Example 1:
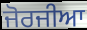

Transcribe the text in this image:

ਜੋਰਜੀਆ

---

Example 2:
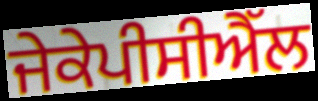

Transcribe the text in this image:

ਜੇਕੇਪੀਸੀਐੱਲ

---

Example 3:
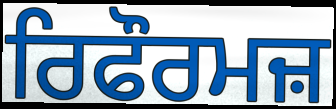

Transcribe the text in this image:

ਰਿਫੌਰਮਜ਼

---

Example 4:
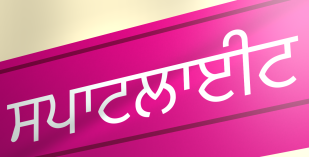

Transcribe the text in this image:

ਸਪਾਟਲਾਈਟ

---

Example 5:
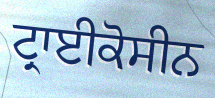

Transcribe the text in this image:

ਟ੍ਰਾਈਕੋਸੀਨ